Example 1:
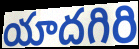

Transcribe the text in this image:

యాదగిరి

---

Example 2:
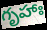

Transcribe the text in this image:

గృహాః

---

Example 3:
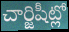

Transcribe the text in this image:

చార్జిషీట్లో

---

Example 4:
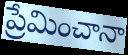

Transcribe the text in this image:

ప్రేమించానా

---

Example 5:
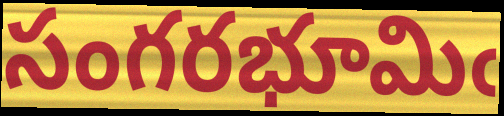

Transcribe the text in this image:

సంగరభూమిఁ